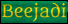
Beejadi